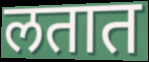
लतात